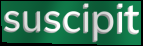
suscipit